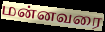
மன்னவரை